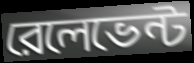
রেলেভেন্ট